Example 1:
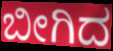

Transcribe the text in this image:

ಬೀಗಿದ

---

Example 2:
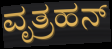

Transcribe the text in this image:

ವೃತ್ರಹನ್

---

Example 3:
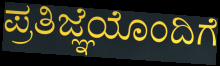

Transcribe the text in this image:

ಪ್ರತಿಜ್ಞೆಯೊಂದಿಗೆ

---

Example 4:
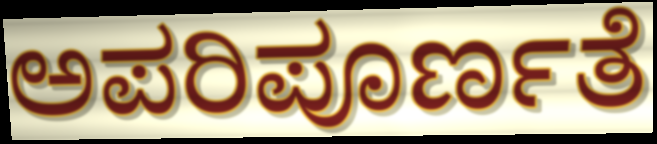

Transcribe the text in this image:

ಅಪರಿಪೂರ್ಣತೆ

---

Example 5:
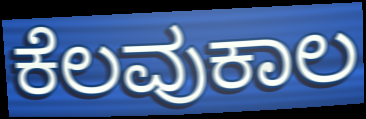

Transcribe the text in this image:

ಕೆಲವುಕಾಲ